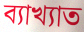
ব্যাখ্যাত